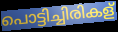
പൊട്ടിച്ചിരികള്